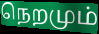
நெறமும்